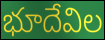
భూదేవిల